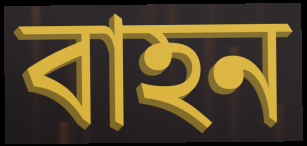
বাহন